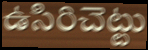
ఉసిరిచెట్టు